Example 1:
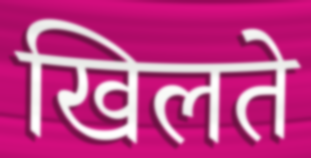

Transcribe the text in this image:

खिलते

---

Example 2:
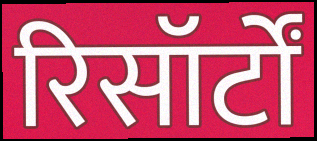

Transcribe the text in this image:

रिसॉर्टों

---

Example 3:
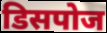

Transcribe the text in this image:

डिसपोज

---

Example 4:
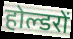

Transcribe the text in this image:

होल्डरों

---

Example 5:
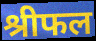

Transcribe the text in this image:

श्रीफल